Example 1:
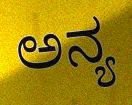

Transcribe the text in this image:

ಅನ್ಯ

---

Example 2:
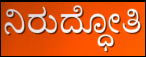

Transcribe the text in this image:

ನಿರುದ್ಧೋತಿ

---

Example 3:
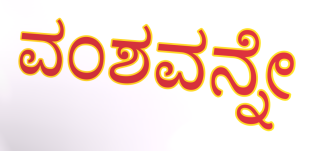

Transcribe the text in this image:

ವಂಶವನ್ನೇ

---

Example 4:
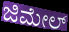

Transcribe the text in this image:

ಜಿಮೇಲ್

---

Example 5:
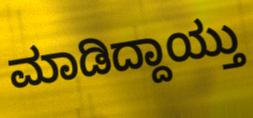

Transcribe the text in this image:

ಮಾಡಿದ್ದಾಯ್ತು